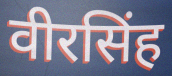
वीरसिंह